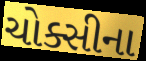
ચોક્સીના